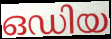
ഒഡിയ